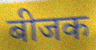
बीजक